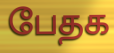
பேதக